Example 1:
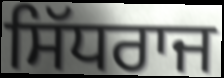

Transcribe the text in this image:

ਸਿੱਧਰਾਜ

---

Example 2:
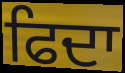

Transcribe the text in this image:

ਫਿਦਾ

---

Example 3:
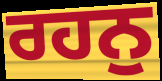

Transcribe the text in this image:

ਰਹਨੁ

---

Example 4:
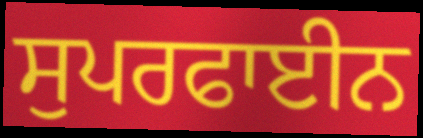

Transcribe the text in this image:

ਸੁਪਰਫਾਈਨ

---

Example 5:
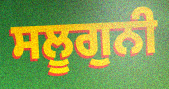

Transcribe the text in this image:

ਸਲੂਗੁਨੀ